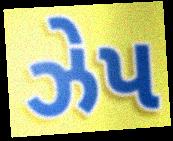
ઝેપ